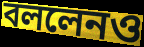
বললেনও